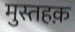
मुस्तहक़